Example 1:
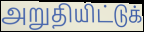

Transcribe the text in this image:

அறுதியிட்டுக்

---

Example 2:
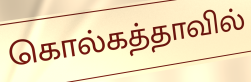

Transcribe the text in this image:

கொல்கத்தாவில்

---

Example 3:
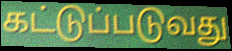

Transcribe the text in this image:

கட்டுப்படுவது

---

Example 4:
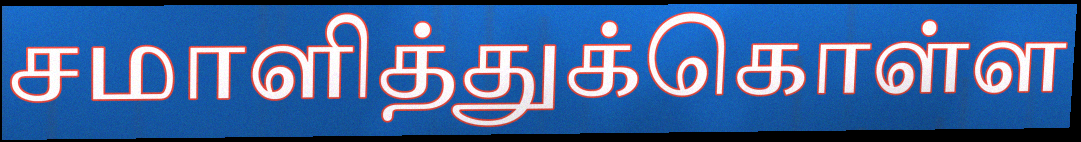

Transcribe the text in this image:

சமாளித்துக்கொள்ள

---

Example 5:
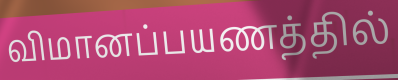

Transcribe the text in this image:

விமானப்பயணத்தில்